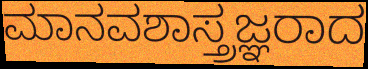
ಮಾನವಶಾಸ್ತ್ರಜ್ಞರಾದ